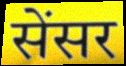
सेंसर